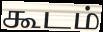
கூடம்